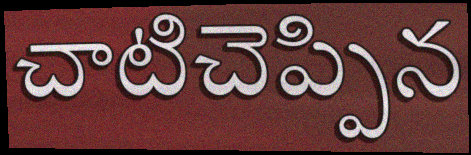
చాటిచెప్పిన